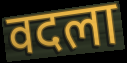
वदला